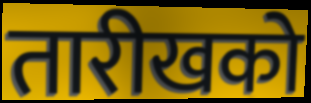
तारीखको